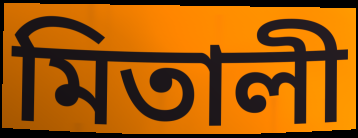
মিতালী